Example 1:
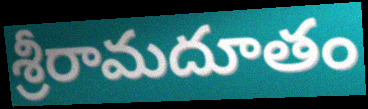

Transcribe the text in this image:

శ్రీరామదూతం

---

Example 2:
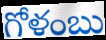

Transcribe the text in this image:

గోళంబు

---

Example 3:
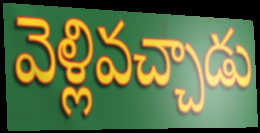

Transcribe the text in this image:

వెళ్లివచ్చాడు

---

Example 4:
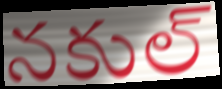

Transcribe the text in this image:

నకుల్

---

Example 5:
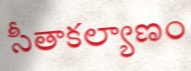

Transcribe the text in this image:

సీతాకల్యాణం